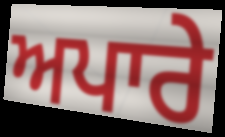
ਅਪਾਰੇ